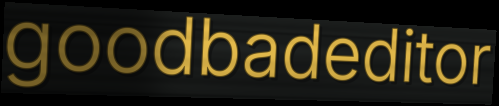
goodbadeditor